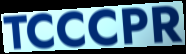
TCCCPR